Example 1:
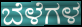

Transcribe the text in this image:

ಬೆಳೆಗಳ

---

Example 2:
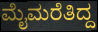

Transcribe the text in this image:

ಮೈಮರೆತಿದ್ದ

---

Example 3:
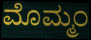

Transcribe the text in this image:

ಮೊಮ್ಮಂ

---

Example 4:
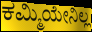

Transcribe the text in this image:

ಕಮ್ಮಿಯೇನಿಲ್ಲ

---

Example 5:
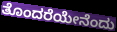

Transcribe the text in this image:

ತೊಂದರೆಯೇನೆಂದು